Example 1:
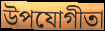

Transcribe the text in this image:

উপযোগীতা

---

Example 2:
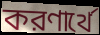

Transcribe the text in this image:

করণার্থে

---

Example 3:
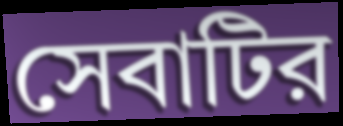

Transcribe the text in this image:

সেবাটির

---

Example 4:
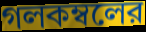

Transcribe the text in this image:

গলকম্বলের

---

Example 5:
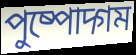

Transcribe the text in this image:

পুষ্পোদ্গম